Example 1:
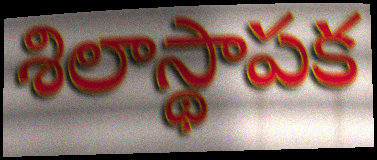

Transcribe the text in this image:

శిలాస్థాపక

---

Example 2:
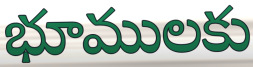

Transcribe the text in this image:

భూములకు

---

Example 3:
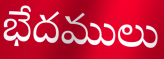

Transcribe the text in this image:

భేదములు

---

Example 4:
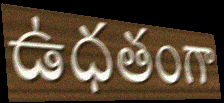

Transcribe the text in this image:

ఉధతంగా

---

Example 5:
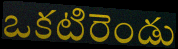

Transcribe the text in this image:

ఒకటిరెండు